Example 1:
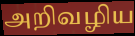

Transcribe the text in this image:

அறிவழிய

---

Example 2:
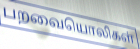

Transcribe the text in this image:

பறவையொலிகள்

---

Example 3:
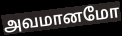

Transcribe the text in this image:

அவமானமோ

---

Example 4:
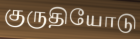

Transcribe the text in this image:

குருதியோடு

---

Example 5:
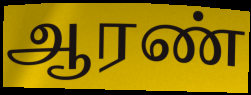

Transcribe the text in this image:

ஆரண்